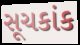
સૂચકાંક